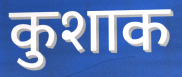
कुशाक